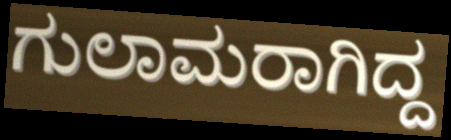
ಗುಲಾಮರಾಗಿದ್ದ